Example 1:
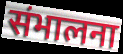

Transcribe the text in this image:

संभालना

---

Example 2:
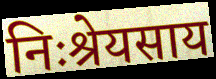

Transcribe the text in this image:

निःश्रेयसाय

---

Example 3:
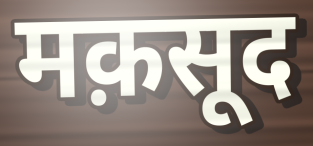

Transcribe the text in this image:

मक़सूद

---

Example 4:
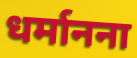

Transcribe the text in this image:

धर्मानना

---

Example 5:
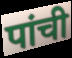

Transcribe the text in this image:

पांची